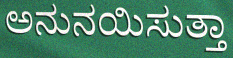
ಅನುನಯಿಸುತ್ತಾ